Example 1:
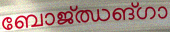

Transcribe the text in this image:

ബോജ്ഝങ്ഗാ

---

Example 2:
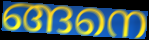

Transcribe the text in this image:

ങ്ങനെ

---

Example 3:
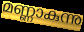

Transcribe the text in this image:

മണ്ണാകുന്നു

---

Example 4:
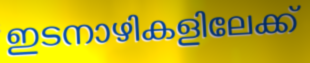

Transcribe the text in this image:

ഇടനാഴികളിലേക്ക്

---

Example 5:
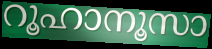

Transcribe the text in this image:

റൂഹാനൂസാ